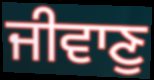
ਜੀਵਾਣੁ